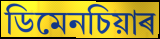
ডিমেনচিয়াৰ